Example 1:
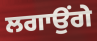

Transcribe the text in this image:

ਲਗਾਉਂਗੇ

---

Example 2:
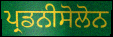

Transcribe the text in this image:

ਪ੍ਰਡਨੀਸੋਲੋਨ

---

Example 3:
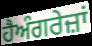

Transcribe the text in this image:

ਹੈਅੰਗਰੇਜ਼ਾਂ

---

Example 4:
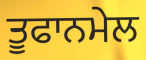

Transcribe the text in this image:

ਤੂਫਾਨਮੇਲ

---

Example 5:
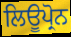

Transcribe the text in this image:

ਲਿਊਪ੍ਰੋਨ